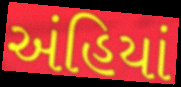
અંહિયાં